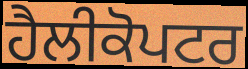
ਹੈਲੀਕੋਪਟਰ